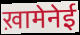
ख़ामेनेई